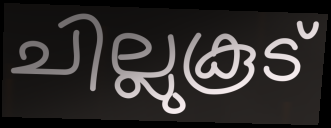
ചില്ലുകൂട്